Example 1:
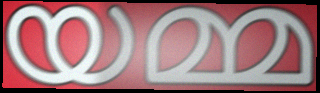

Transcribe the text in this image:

യമ്മ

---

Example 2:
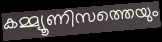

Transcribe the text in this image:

കമ്മ്യൂണിസത്തെയും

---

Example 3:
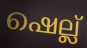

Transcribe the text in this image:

ഷെല്ല്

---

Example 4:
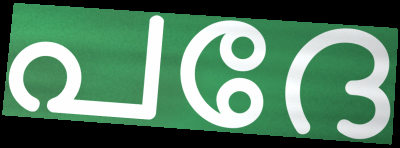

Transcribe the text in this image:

പദേ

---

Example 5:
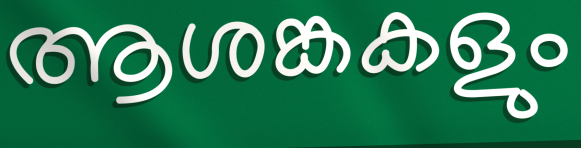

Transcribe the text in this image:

ആശങ്കകളും